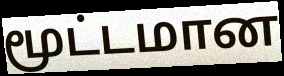
மூட்டமான